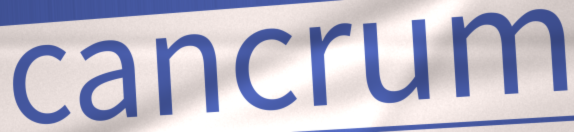
cancrum